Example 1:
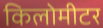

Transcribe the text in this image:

किलोमीटर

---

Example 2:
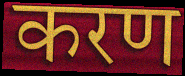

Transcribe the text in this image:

करण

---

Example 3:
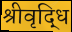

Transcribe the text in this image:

श्रीवृद्धि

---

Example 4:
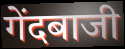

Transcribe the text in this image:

गेंदबाजी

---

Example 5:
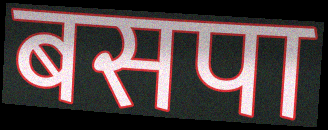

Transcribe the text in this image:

बसपा